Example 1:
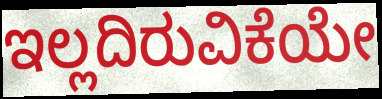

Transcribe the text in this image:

ಇಲ್ಲದಿರುವಿಕೆಯೇ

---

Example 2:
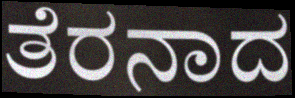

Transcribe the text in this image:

ತೆರನಾದ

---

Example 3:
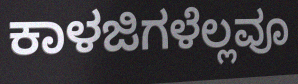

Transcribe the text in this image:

ಕಾಳಜಿಗಳೆಲ್ಲವೂ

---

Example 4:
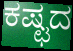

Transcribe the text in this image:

ಕಷ್ಟದ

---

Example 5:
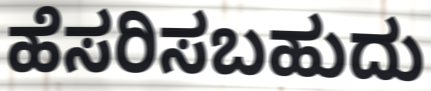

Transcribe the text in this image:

ಹೆಸರಿಸಬಹುದು